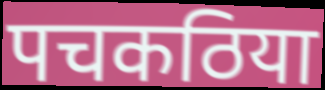
पचकठिया